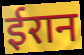
ईरान